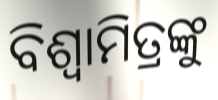
ବିଶ୍ଵାମିତ୍ରଙ୍କୁ